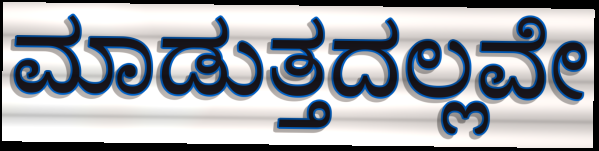
ಮಾಡುತ್ತದಲ್ಲವೇ